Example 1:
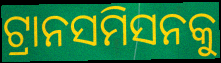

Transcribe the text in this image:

ଟ୍ରାନସମିସନକୁ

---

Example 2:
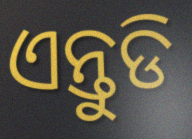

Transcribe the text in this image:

ଏନ୍ତୁଡି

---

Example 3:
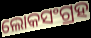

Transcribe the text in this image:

ଲୋକସଂଗ୍ରହ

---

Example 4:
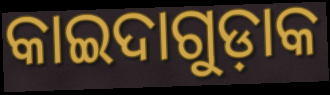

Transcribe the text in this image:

କାଇଦାଗୁଡ଼ାକ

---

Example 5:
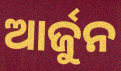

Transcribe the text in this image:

ଆର୍ଜୁନ